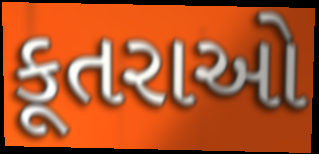
કૂતરાઓ